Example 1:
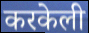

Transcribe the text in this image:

करकेली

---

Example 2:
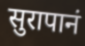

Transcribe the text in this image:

सुरापानं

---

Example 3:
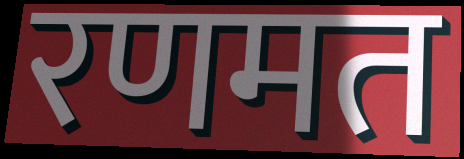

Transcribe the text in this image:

रणमत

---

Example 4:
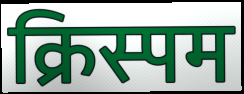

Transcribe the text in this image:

क्रिस्पम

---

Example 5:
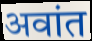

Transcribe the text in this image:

अवांत